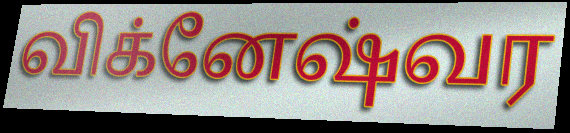
விக்னேஷ்வர